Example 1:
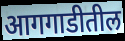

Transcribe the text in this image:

आगगाडीतील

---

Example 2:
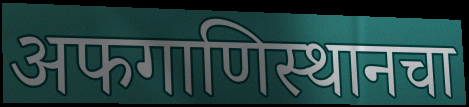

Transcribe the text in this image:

अफगाणिस्थानचा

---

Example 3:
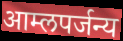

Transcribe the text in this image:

आम्लपर्जन्य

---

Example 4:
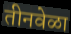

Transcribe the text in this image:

तीनवेळा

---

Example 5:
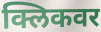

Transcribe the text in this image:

क्लिकवर